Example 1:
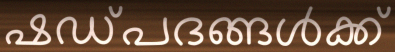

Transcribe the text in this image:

ഷഡ്പദങ്ങൾക്ക്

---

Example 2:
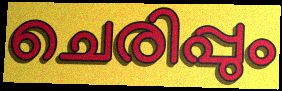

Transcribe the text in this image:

ചെരിപ്പും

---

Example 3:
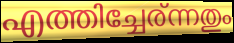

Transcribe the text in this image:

എത്തിച്ചേര്ന്നതും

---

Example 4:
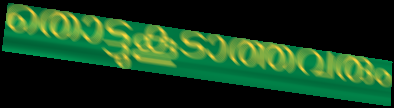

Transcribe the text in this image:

തൊട്ടുകൂടാത്തവരും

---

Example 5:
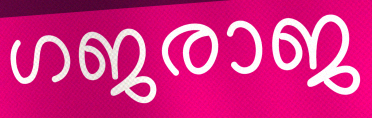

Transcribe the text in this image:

ഗജരാജ